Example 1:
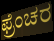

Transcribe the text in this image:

ಫ್ರೆಂಚರ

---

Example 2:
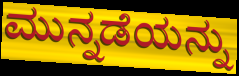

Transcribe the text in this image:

ಮುನ್ನಡೆಯನ್ನು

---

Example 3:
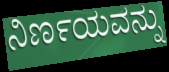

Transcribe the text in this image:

ನಿರ್ಣಯವನ್ನು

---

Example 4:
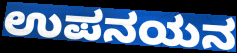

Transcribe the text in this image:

ಉಪನಯನ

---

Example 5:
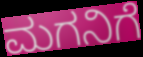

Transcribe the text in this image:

ಮಗನಿಗೆ